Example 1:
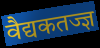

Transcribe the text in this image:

वैद्यकतज्ज्ञ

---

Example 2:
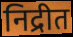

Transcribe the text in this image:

निद्रीत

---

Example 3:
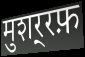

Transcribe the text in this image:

मुशर्रफ़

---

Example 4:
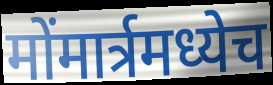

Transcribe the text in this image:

मोंमार्त्रमध्येच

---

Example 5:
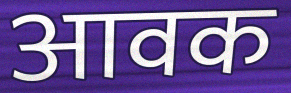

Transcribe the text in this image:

आवक